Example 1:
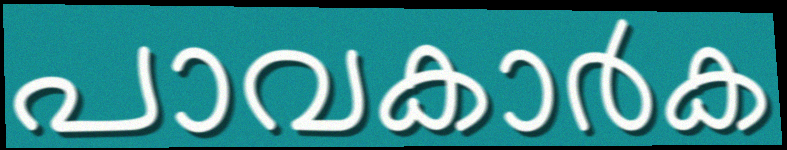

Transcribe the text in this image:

പാവകാർക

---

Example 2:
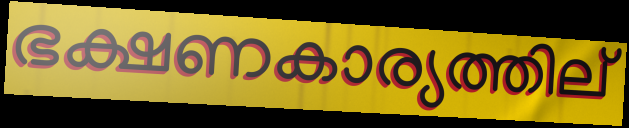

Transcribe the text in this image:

ഭക്ഷണകാര്യത്തില്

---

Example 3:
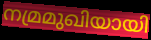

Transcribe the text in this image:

നമ്രമുഖിയായി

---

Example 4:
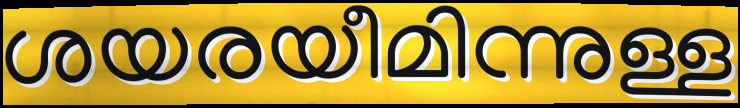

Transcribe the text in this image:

ശയരയീമിന്നുള്ള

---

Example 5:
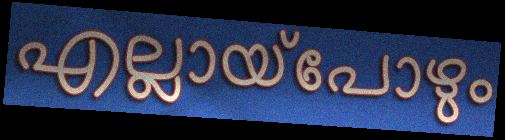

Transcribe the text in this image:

എല്ലായ്‌പോഴും